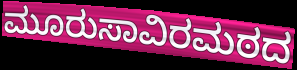
ಮೂರುಸಾವಿರಮಠದ